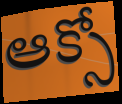
ఆక్సో